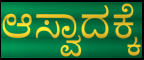
ಆಸ್ವಾದಕ್ಕೆ